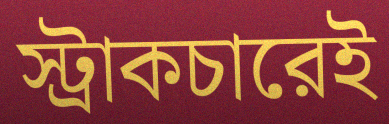
স্ট্রাকচারেই